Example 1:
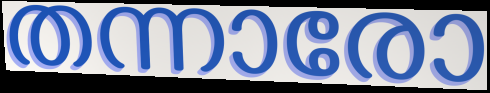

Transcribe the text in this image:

തന്നാരോ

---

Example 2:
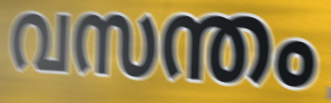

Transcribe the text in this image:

വസന്തം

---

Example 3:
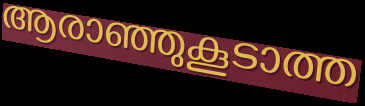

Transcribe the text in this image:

ആരാഞ്ഞുകൂടാത്ത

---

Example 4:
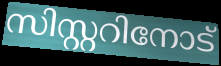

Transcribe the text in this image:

സിസ്റ്ററിനോട്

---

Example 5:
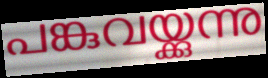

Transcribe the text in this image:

പങ്കുവയ്ക്കുന്നു